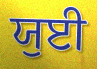
ਯੁਈ